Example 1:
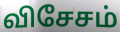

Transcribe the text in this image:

விசேசம்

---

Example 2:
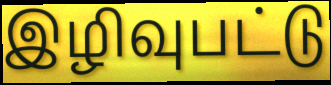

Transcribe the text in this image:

இழிவுபட்டு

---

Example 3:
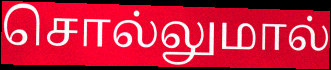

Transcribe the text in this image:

சொல்லுமால்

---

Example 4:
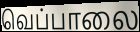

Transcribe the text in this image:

வெப்பாலை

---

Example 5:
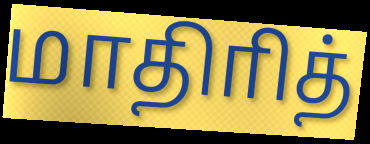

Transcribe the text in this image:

மாதிரித்